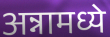
अन्नामध्ये